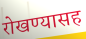
रोखण्यासह